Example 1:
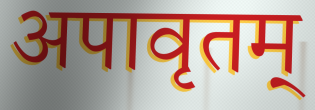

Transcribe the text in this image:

अपावृतम्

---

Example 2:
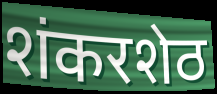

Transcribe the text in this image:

शंकरशेठ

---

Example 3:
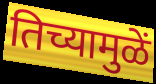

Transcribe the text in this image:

तिच्यामुळें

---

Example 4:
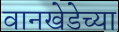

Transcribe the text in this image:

वानखेडेच्या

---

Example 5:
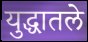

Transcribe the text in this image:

युद्धातले